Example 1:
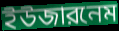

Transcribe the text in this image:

ইউজারনেম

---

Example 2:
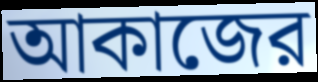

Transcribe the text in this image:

আকাজের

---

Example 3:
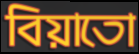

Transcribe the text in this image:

বিয়াতো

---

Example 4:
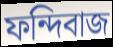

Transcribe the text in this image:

ফন্দিবাজ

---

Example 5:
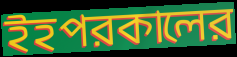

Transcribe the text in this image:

ইহপরকালের